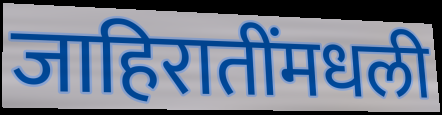
जाहिरातींमधली